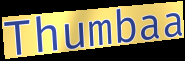
Thumbaa